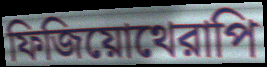
ফিজিয়োথেরাপি